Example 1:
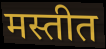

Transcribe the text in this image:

मस्तीत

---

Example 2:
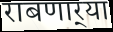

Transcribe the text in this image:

राबणार्या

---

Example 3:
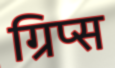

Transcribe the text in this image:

ग्रिप्स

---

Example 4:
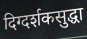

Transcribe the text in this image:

दिग्दर्शकसुद्धा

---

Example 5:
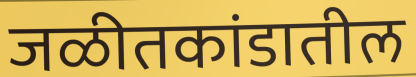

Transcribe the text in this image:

जळीतकांडातील